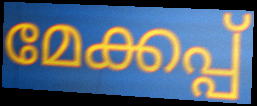
മേക്കപ്പ്